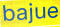
bajue